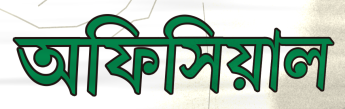
অফিসিয়াল